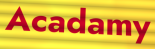
Acadamy